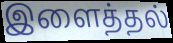
இளைத்தல்